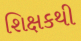
શિક્ષકથી